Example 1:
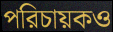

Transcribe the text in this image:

পরিচায়কও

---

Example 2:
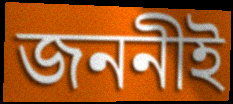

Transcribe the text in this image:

জননীই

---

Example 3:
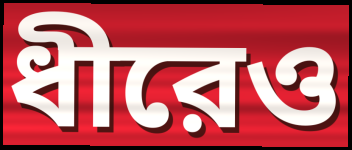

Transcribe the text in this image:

ধীরেও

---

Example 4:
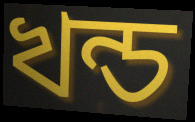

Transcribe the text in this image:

খন্ড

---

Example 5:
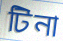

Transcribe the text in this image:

টিনা